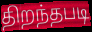
திறந்தபடி